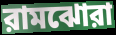
রামঝোরা